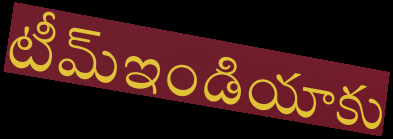
టీమ్ఇండియాకు